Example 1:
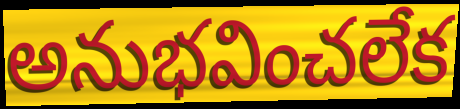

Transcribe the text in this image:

అనుభవించలేక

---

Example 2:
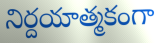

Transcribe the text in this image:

నిర్దయాత్మకంగా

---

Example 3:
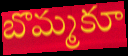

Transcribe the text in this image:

బొమ్మకూ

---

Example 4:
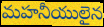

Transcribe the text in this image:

మహనీయులైన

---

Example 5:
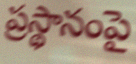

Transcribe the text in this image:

ప్రస్థానంపై